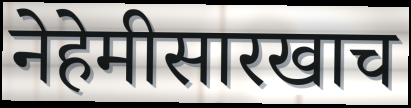
नेहेमीसारखाच